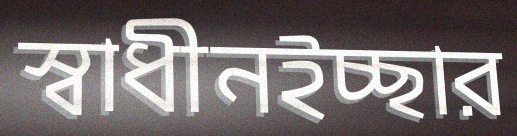
স্বাধীনইচ্ছার